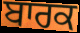
ਬਾਰਕ